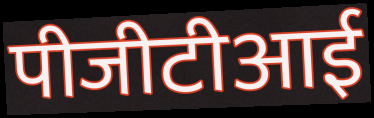
पीजीटीआई